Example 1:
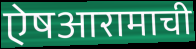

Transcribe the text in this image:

ऐषआरामाची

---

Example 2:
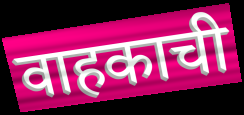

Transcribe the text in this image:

वाहकाची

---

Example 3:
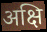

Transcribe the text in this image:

अक्षि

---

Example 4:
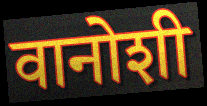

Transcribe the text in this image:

वानोशी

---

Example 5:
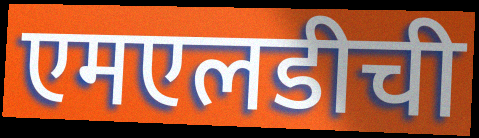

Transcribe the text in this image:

एमएलडीची